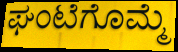
ಘಂಟೆಗೊಮ್ಮೆ